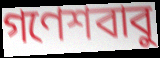
গণেশবাবু